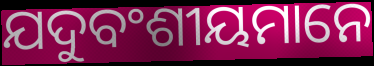
ଯଦୁବଂଶୀୟମାନେ